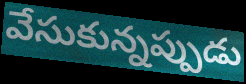
వేసుకున్నప్పుడు